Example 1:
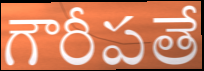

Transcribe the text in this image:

గౌరీపతే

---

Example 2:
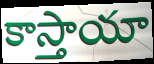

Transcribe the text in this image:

కాస్తాయా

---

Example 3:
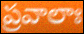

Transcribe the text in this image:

ప్రవాలాః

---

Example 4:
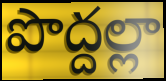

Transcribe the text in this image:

పొద్దల్లా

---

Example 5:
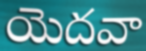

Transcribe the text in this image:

యెదవా